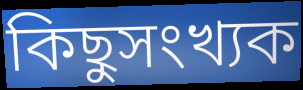
কিছুসংখ্যক